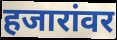
हजारांवर